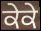
ਕੇਕੇ